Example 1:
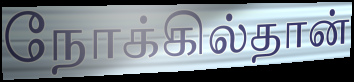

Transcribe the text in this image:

நோக்கில்தான்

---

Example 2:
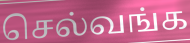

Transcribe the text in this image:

செல்வங்க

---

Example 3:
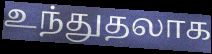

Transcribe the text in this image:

உந்துதலாக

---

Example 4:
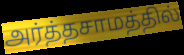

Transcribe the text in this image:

அர்த்தசாமத்தில்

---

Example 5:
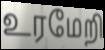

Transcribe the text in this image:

உரமேறி